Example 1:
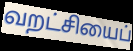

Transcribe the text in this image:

வறட்சியைப்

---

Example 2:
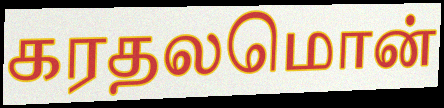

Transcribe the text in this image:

கரதலமொன்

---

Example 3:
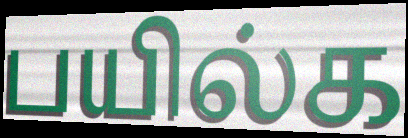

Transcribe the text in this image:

பயில்க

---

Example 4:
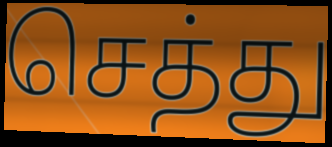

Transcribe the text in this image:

செத்து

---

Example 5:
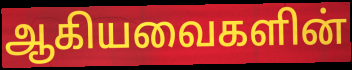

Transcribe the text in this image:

ஆகியவைகளின்